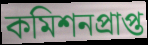
কমিশনপ্রাপ্ত